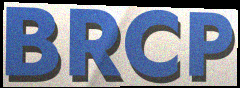
BRCP